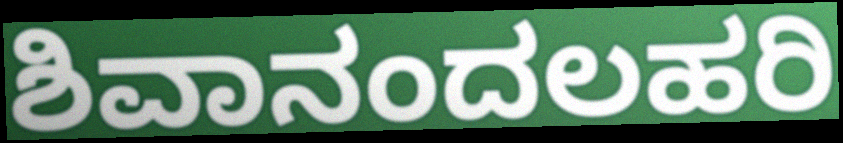
ಶಿವಾನಂದಲಹರಿ